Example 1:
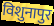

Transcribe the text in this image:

विशुनापुर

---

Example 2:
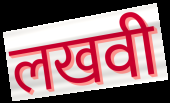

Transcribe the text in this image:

लखवी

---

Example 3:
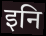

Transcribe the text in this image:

इनि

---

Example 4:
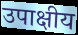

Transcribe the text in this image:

उपाक्षीय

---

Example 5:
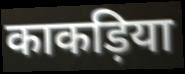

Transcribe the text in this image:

काकड़िया